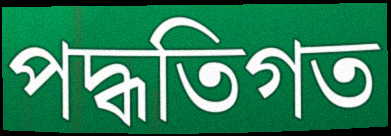
পদ্ধতিগত